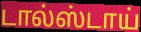
டால்ஸ்டாய்